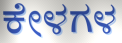
ಕೇಳಗಳ